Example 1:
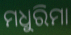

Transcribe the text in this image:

ମଧୁରିମା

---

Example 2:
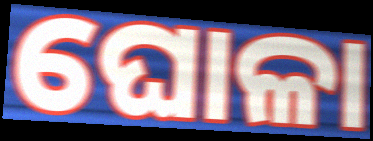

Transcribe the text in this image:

ଘୋଳା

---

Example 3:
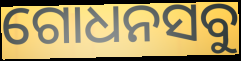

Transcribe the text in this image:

ଗୋଧନସବୁ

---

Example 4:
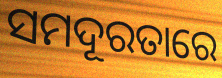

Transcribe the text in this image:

ସମଦୂରତାରେ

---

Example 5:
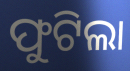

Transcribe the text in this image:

ଫୁଟିଲା